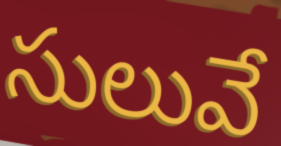
సులువే